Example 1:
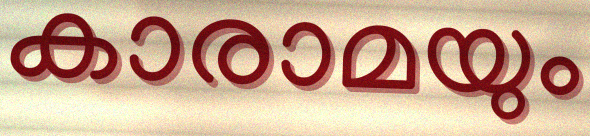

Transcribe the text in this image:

കാരാമയും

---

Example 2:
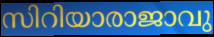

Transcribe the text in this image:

സിറിയാരാജാവു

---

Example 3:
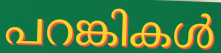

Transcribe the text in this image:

പറങ്കികൾ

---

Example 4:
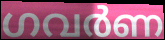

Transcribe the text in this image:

ഗവർണ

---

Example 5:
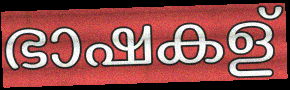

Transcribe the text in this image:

ഭാഷകള്